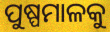
ପୁଷ୍ପମାଳକୁ